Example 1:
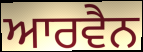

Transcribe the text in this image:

ਆਰਵੈਨ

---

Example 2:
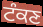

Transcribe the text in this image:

ਟੰਕਣ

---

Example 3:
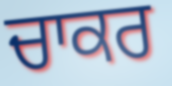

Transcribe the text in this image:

ਚਾਕਰ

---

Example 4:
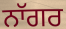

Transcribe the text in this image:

ਨਾੱਗਰ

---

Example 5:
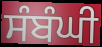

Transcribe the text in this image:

ਸੰਬੰਘੀ